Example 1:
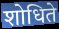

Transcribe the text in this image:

शोधिते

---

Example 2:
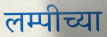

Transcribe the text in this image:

लम्पीच्या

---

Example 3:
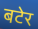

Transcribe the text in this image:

बटेर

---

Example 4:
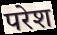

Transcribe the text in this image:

परेश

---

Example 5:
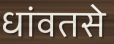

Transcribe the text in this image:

धांवतसे